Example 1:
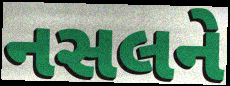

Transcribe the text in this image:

નસલને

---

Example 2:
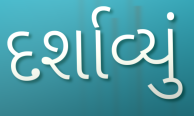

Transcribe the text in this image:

દર્શાવ્યું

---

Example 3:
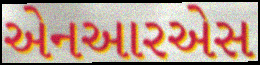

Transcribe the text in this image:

એનઆરએસ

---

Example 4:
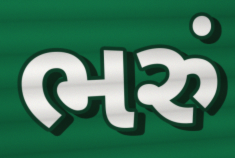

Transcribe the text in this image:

ભરું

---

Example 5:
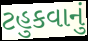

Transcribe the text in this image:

ટહુકવાનું